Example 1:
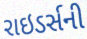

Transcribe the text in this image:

રાઇડર્સની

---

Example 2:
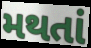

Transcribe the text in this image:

મથતાં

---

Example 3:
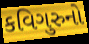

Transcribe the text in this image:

કવિગુરુનો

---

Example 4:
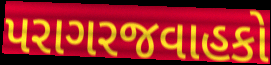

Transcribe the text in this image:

પરાગરજવાહકો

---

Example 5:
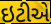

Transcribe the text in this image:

ઇટીએ